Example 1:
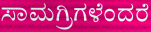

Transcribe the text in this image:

ಸಾಮಗ್ರಿಗಳೆಂದರೆ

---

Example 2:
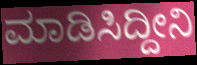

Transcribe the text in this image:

ಮಾಡಿಸಿದ್ದೀನಿ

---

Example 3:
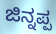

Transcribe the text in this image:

ಜಿನ್ನಪ್ಪ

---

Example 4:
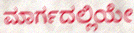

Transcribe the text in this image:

ಮಾರ್ಗದಲ್ಲಿಯೇ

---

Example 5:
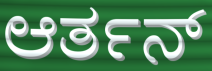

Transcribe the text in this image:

ಆರ್ತನ್